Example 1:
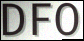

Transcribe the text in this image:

DFO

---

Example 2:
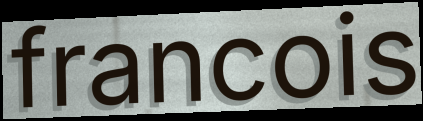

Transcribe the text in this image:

francois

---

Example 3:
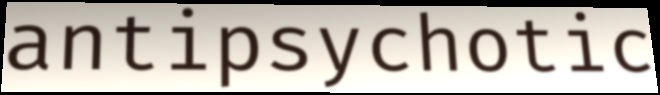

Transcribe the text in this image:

antipsychotic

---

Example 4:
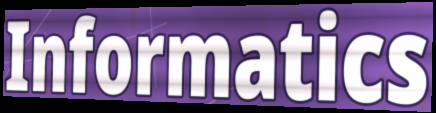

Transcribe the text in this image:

Informatics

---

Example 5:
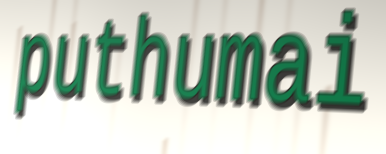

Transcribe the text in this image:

puthumai